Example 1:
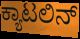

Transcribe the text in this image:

ಕ್ಯಾಟಲಿನ್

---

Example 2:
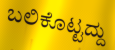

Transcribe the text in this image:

ಬಲಿಕೊಟ್ಟದ್ದು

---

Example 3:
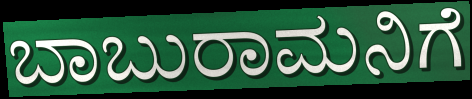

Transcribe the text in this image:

ಬಾಬುರಾಮನಿಗೆ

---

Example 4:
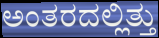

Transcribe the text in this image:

ಅಂತರದಲ್ಲಿತ್ತು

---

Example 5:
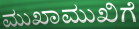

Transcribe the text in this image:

ಮುಖಾಮುಖಿಗೆ